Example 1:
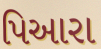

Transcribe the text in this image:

પિઆરા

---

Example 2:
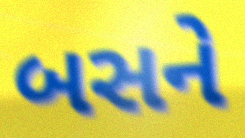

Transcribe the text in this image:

બસને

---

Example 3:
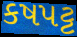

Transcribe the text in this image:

કષપટ્ટ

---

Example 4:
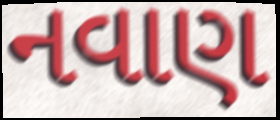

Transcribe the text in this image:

નવાણ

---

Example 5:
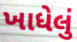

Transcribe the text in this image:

ખાધેલું